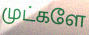
முட்களே